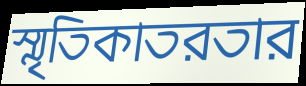
স্মৃতিকাতরতার